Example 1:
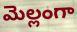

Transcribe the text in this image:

మెల్లంగా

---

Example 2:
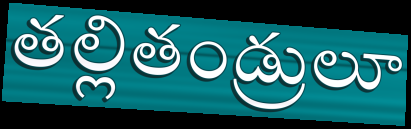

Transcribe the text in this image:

తల్లితండ్రులూ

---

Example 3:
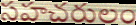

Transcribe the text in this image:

సహచరులం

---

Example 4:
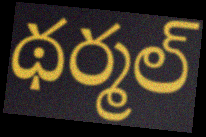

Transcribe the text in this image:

థర్మల్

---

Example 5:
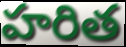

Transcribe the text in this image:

హరిత